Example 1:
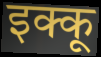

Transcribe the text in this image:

इक्कू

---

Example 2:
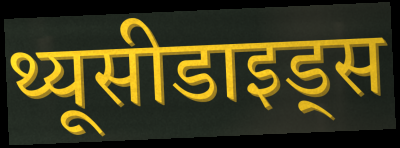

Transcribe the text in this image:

थ्यूसीडाइड्स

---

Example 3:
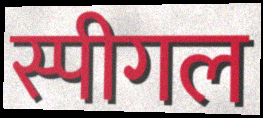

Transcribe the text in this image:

स्पीगल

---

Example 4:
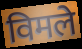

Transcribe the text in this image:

विमले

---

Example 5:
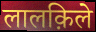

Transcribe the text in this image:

लालक़िले